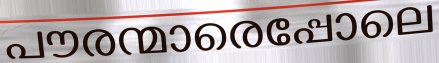
പൗരന്മാരെപ്പോലെ